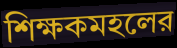
শিক্ষকমহলের